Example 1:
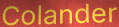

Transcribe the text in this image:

Colander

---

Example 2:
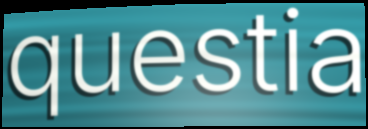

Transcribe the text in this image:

questia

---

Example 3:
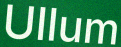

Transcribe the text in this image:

Ullum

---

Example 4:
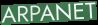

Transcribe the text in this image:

ARPANET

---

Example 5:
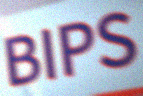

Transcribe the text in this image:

BIPS